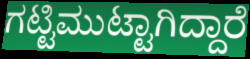
ಗಟ್ಟಿಮುಟ್ಟಾಗಿದ್ದಾರೆ